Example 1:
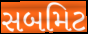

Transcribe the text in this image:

સબમિટ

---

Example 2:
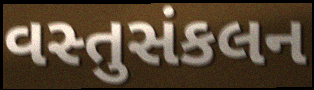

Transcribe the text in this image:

વસ્તુસંકલન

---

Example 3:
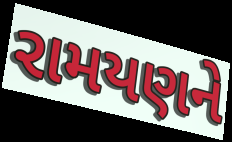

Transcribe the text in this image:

રામયણને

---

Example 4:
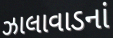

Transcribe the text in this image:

ઝાલાવાડનાં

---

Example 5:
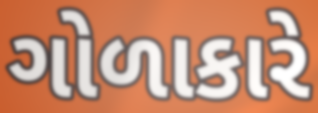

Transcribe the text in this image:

ગોળાકારે